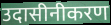
उदासीनीकरण